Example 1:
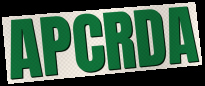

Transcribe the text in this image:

APCRDA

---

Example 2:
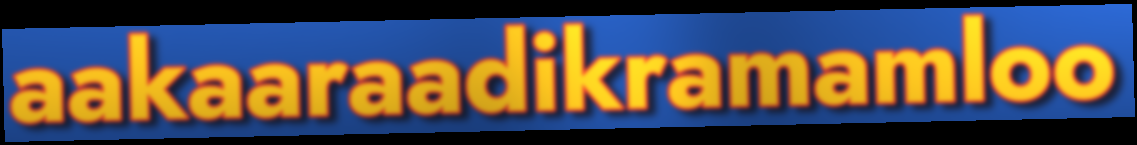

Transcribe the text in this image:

aakaaraadikramamloo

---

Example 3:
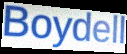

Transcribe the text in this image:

Boydell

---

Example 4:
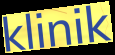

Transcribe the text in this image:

klinik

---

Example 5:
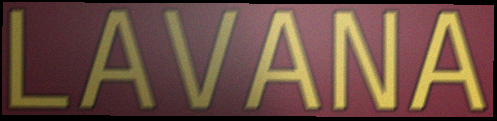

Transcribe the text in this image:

LAVANA